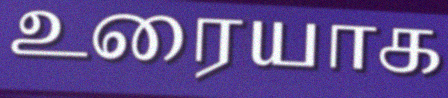
உரையாக